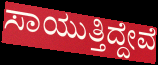
ಸಾಯುತ್ತಿದ್ದೇವೆ